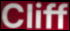
Cliff